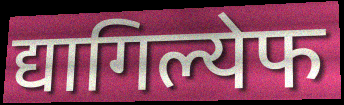
द्यागिल्येफ